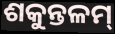
ଶକୁନ୍ତଳମ୍